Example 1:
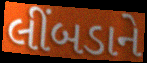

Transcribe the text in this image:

લીંબડાને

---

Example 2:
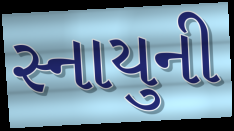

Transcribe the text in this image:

સ્નાયુની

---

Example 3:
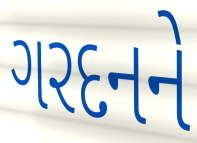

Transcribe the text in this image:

ગરદનને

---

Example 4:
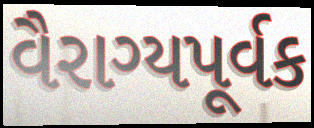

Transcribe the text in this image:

વૈરાગ્યપૂર્વક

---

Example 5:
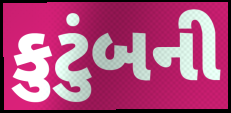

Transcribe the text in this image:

કુટુંબની